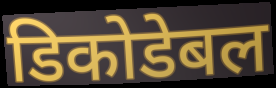
डिकोडेबल